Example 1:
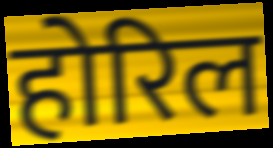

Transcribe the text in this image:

होरिल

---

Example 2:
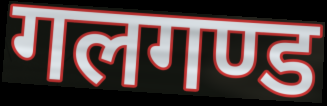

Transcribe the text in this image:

गलगण्ड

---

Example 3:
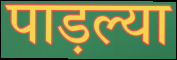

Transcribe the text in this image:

पाड़ल्या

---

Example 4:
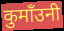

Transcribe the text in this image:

कुमाँउनी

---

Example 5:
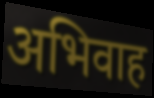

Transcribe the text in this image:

अभिवाह